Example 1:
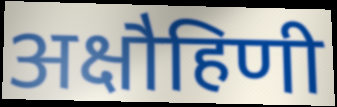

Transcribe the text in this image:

अक्षौहिणी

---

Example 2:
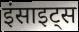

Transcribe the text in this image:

इंसाइट्स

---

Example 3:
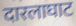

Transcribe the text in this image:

दारलाघाट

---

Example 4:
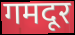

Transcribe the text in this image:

गमदूर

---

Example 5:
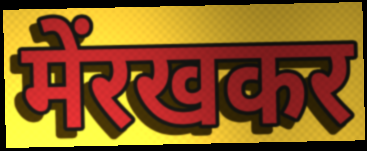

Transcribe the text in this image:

मेंरखकर